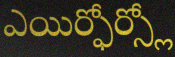
ఎయిర్ఫోర్స్లో